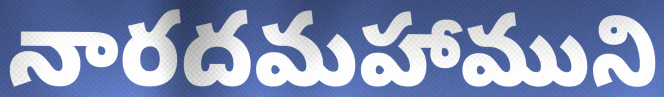
నారదమహాముని